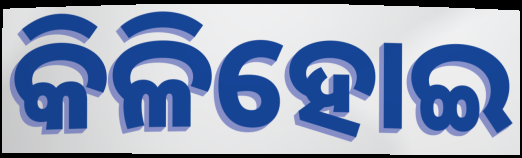
କିଳିହୋଇ